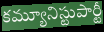
కమ్యూనిస్టుపార్టీ